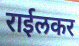
राईलकर